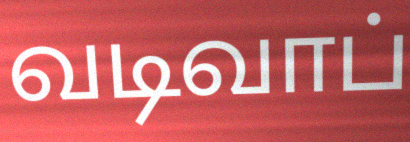
வடிவாப்